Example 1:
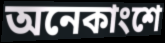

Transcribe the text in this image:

অনেকাংশে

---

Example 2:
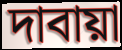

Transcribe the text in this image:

দাবায়া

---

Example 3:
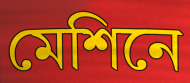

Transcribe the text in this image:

মেশিনে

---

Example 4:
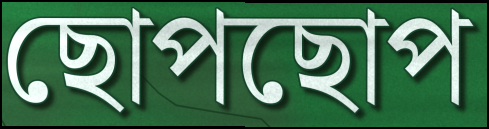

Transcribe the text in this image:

ছোপছোপ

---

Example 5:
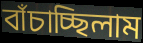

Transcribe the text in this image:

বাঁচাচ্ছিলাম